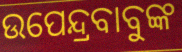
ଉପେନ୍ଦ୍ରବାବୁଙ୍କ